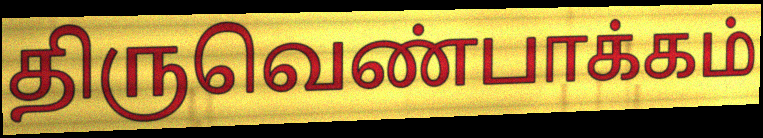
திருவெண்பாக்கம்